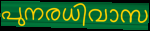
പുനരധിവാസ